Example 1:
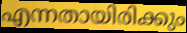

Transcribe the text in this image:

എന്നതായിരിക്കും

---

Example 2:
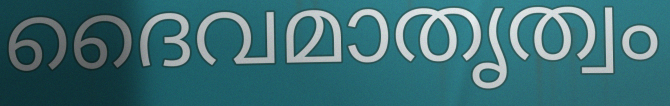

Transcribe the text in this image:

ദൈവമാതൃത്വം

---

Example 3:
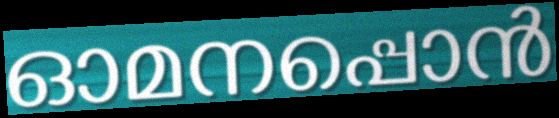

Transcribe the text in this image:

ഓമനപ്പൊൻ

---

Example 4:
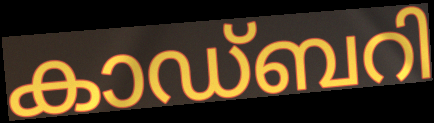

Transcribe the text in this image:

കാഡ്ബറി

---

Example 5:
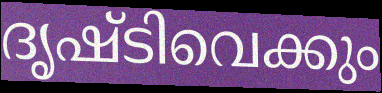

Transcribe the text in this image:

ദൃഷ്ടിവെക്കും